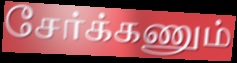
சேர்க்கணும்